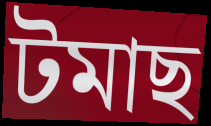
টমাছ